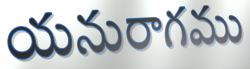
యనురాగము